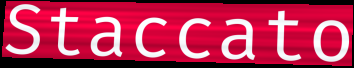
Staccato